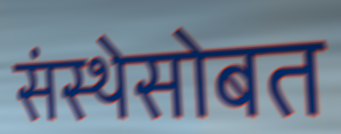
संस्थेसोबत